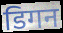
डिगन